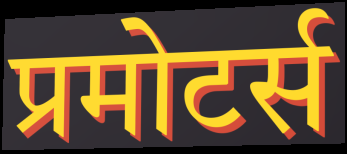
प्रमोटर्स